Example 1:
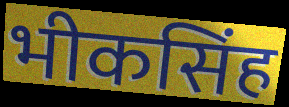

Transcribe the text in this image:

भीकसिंह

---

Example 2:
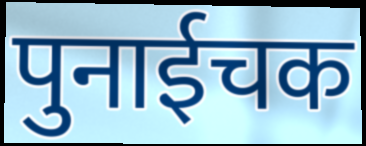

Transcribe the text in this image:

पुनाईचक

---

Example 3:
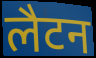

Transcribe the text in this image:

लैटन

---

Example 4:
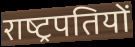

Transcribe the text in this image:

राष्ट्रपतियों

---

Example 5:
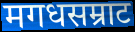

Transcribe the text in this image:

मगधसम्राट